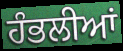
ਹੰਭਲੀਆਂ